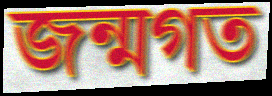
জন্মগত